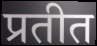
प्रतीत